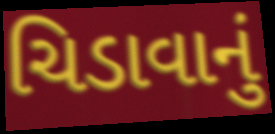
ચિડાવાનું